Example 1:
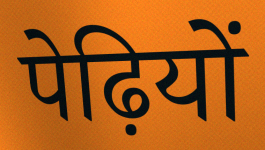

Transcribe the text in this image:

पेढ़ियों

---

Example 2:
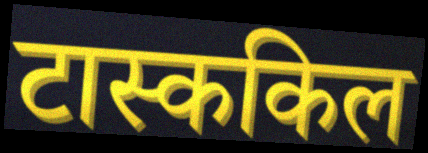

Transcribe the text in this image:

टास्ककिल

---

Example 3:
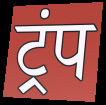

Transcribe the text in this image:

ट्रंप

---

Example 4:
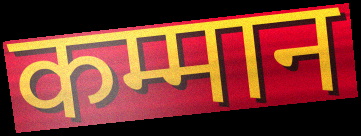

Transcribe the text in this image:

कम्मान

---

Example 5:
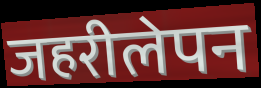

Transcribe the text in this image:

जहरीलेपन